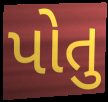
પોતુ